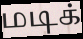
மடிக்